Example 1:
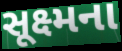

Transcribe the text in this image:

સૂક્ષ્મના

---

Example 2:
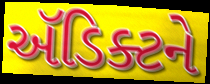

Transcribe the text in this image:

ઍડિક્ટને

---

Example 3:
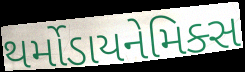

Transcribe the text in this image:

થર્મોડાયનેમિક્સ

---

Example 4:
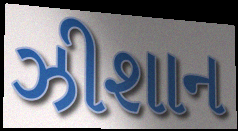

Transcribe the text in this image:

ઝીશાન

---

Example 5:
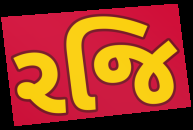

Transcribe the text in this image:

રજિ